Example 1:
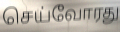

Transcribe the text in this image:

செய்வோரது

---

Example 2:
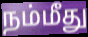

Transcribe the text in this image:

நம்மீது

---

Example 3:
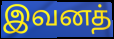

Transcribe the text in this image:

இவனத்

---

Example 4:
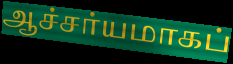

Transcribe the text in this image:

ஆச்சர்யமாகப்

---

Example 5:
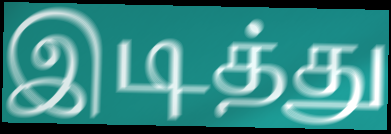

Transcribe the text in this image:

இடித்து